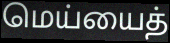
மெய்யைத்